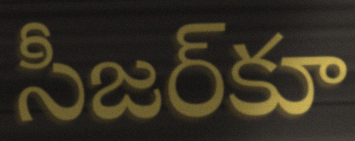
సీజర్‌కూ